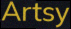
Artsy